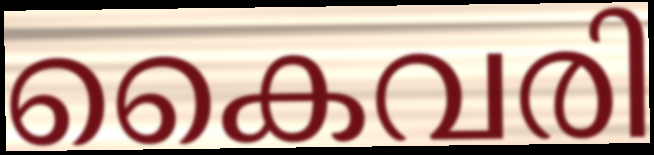
കൈവരി